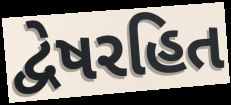
દ્વેષરહિત